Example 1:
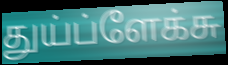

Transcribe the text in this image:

துய்ப்ளேக்சு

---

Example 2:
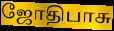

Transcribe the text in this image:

ஜோதிபாசு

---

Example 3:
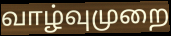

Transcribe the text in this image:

வாழ்வுமுறை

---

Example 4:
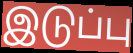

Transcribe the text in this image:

இடுப்பு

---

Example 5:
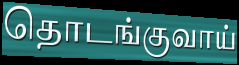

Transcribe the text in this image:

தொடங்குவாய்